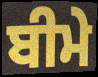
ਬੀਮੇ